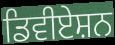
ਡਿਵੀਏਸ਼ਨ